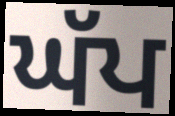
ਘੱਪ